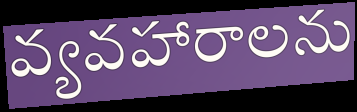
వ్యవహారాలను